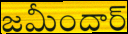
జమీందార్